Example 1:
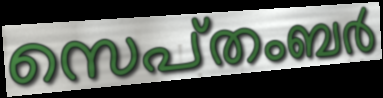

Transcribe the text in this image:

സെപ്‌തംബർ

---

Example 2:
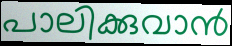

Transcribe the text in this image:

പാലിക്കുവാൻ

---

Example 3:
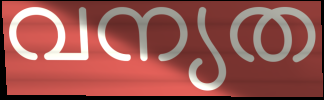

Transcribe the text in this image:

വന്യത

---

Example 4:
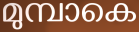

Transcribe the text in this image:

മുമ്പാകെ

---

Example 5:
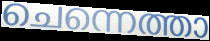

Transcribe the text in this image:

ചെന്നെത്താ